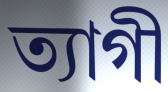
ত্যাগী